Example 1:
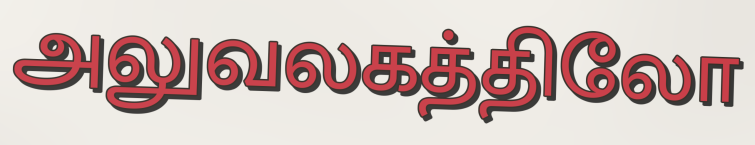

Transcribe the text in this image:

அலுவலகத்திலோ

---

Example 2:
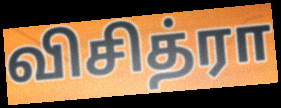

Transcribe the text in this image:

விசித்ரா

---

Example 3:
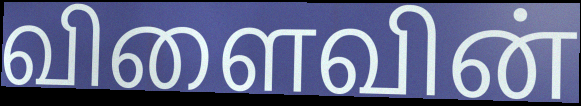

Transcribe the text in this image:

விளைவின்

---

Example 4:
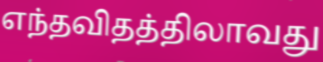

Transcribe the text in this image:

எந்தவிதத்திலாவது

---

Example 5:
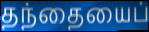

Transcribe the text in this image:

தந்தையைப்